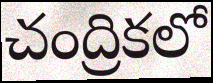
చంద్రికలో